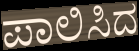
ಪಾಲಿಸಿದ